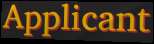
Applicant